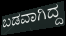
ಬಡವಾಗಿದ್ದ